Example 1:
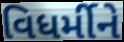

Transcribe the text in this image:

વિધર્મીને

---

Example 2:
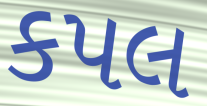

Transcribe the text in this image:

કપલ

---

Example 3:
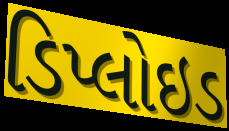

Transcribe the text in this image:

ડિપ્લોઇડ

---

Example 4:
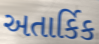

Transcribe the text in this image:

અતાર્કિક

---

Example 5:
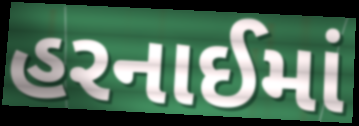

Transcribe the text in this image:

હરનાઈમાં